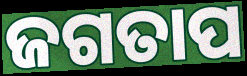
ଜଗତାପ